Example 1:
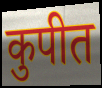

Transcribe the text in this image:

कुपीत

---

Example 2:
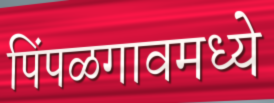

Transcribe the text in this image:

पिंपळगावमध्ये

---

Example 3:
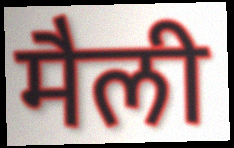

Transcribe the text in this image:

मैली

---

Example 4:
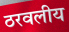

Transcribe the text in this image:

ठरवलीय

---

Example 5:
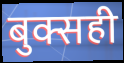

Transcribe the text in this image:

बुक्सही